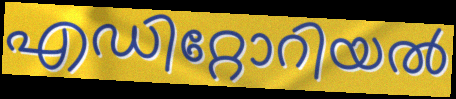
എഡിറ്റോറിയൽ